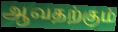
ஆவதற்கும்